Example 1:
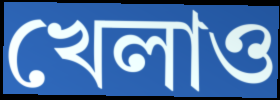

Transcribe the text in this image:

খেলাও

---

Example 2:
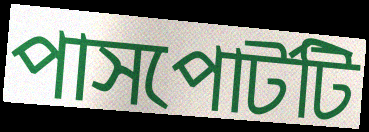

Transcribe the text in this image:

পাসপোর্টটি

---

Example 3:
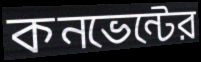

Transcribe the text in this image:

কনভেন্টের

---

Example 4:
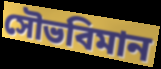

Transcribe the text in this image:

সৌভবিমান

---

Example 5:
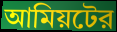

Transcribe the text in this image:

আমিয়টের